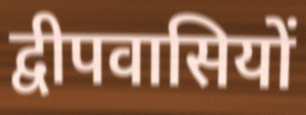
द्वीपवासियों